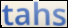
tahs